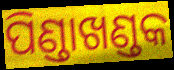
ପିଣ୍ଡାଖଣ୍ଡକ